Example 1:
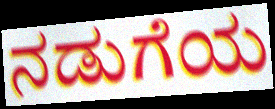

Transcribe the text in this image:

ನಡುಗೆಯ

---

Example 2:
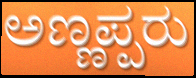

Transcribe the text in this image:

ಅಣ್ಣಪ್ಪರು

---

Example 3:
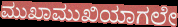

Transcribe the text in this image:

ಮುಖಾಮುಖಿಯಾಗಲೇ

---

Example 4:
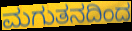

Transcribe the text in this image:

ಮಗುತನದಿಂದ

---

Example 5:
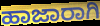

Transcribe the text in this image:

ಹಾಜಾರಾಗಿ